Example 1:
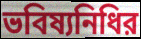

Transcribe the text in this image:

ভবিষ্যনিধির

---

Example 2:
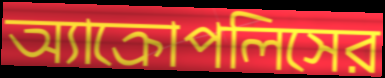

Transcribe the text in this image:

অ্যাক্রোপলিসের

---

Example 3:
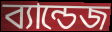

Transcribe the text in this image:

ব্যান্ডেজ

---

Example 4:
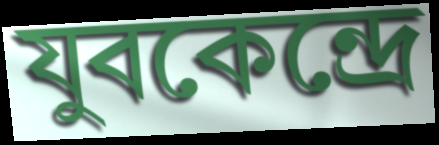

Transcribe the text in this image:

যুবকেন্দ্রে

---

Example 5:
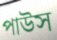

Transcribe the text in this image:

পাউস